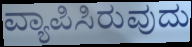
ವ್ಯಾಪಿಸಿರುವುದು